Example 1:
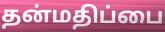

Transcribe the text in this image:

தன்மதிப்பை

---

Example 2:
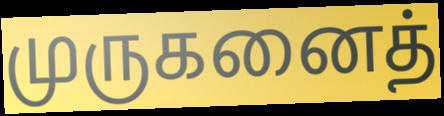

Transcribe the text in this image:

முருகனைத்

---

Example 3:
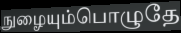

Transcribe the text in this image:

நுழையும்பொழுதே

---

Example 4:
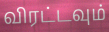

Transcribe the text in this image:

விரட்டவும்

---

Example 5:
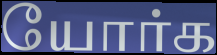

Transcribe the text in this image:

யோர்க